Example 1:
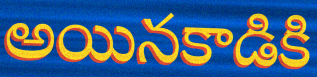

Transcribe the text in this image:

అయినకాడికి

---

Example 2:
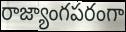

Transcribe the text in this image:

రాజ్యాంగపరంగా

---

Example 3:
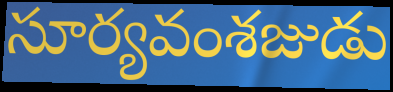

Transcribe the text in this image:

సూర్యవంశజుడు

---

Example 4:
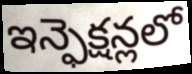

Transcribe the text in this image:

ఇన్ఫెక్షన్లలో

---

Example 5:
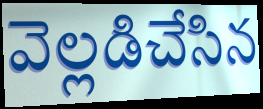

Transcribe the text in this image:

వెల్లడిచేసిన